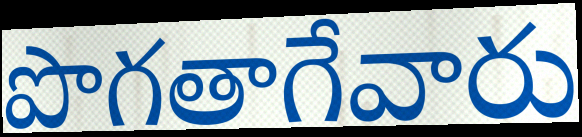
పొగతాగేవారు